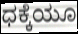
ಧಕ್ಕೆಯೂ